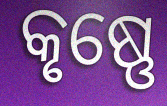
କୃଷ୍ଣେ